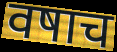
वषाच